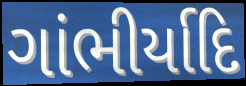
ગાંભીર્યાદિ